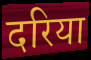
दरिया